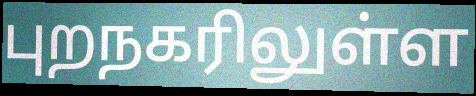
புறநகரிலுள்ள